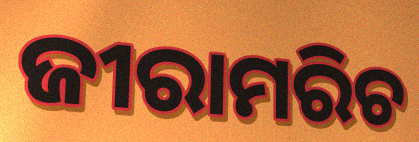
ଜୀରାମରିଚ